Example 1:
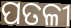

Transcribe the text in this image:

ପତଳୀ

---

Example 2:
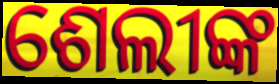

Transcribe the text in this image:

ଶେଲୀଙ୍କ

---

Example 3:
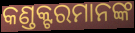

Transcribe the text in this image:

କଣ୍ଡକ୍ଟରମାନଙ୍କ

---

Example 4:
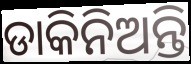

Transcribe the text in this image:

ଡାକିନିଅନ୍ତି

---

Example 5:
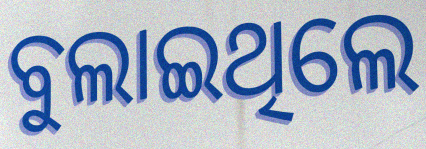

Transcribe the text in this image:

ବୁଲାଇଥିଲେ